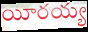
యీరయ్య